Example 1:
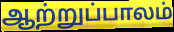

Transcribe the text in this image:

ஆற்றுப்பாலம்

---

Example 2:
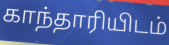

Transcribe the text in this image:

காந்தாரியிடம்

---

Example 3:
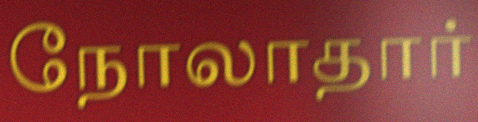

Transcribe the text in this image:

நோலாதார்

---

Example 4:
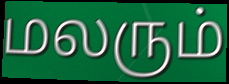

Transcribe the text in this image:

மலரும்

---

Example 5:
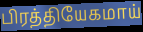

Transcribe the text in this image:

பிரத்தியேகமாய்